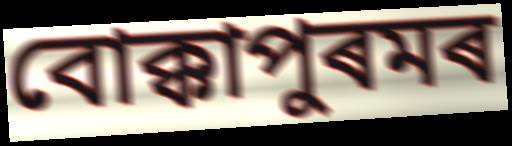
বোক্কাপুৰমৰ